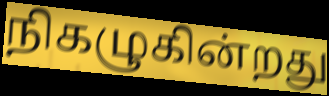
நிகழுகின்றது